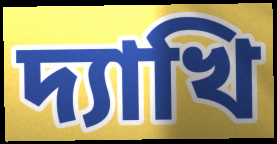
দ্যাখি